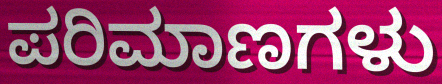
ಪರಿಮಾಣಗಳು